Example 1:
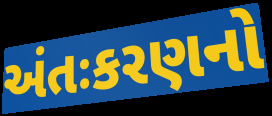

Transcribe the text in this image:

અંતઃકરણનો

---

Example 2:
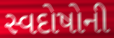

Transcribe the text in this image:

સ્વદોષોની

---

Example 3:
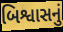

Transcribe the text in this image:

બિશ્વાસનું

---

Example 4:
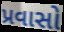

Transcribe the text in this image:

પ્રવાસો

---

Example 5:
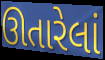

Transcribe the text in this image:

ઊતારેલાં